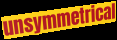
unsymmetrical